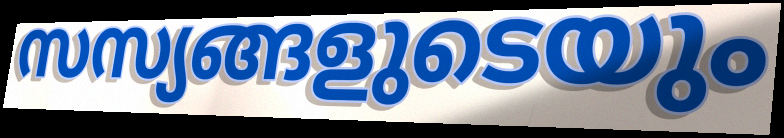
സസ്യങ്ങളുടെയും